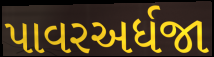
પાવરઅર્ધજા